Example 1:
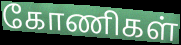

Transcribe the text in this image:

கோணிகள்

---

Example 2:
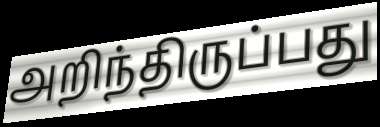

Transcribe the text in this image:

அறிந்திருப்பது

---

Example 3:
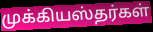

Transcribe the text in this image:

முக்கியஸ்தர்கள்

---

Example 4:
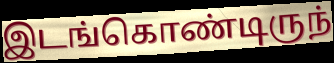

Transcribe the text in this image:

இடங்கொண்டிருந்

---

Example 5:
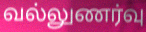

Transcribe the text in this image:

வல்லுணர்வு